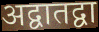
अद्वातद्वा